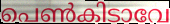
പെൺകിടാവേ